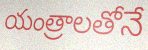
యంత్రాలతోనే